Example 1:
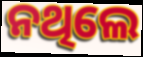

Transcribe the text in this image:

ନଥିଲେ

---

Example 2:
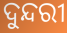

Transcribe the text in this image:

ଦୁନ୍ଦରୀ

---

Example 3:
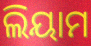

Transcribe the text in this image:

ଲିୟାମ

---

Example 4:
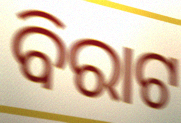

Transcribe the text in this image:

ବିରାଟ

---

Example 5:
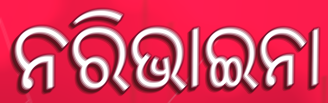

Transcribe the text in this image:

ନରିଭାଇନା